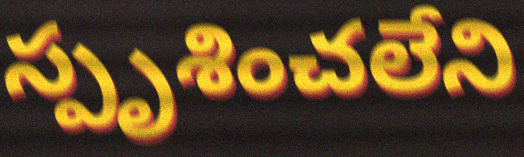
స్పృశించలేని